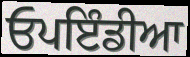
ਓਪਇੰਡੀਆ